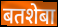
बतशेबा